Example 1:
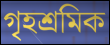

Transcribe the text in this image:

গৃহশ্রমিক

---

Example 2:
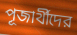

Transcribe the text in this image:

পূজার্থীদের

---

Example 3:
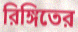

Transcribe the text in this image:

রিঙ্গিতের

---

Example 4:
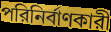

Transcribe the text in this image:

পরিনির্বাণকারী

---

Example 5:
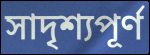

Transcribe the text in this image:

সাদৃশ্যপূর্ণ